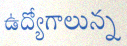
ఉద్యోగాలున్న